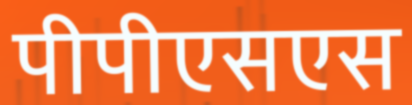
पीपीएसएस